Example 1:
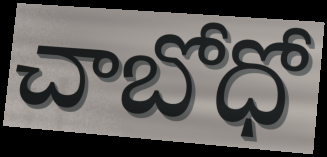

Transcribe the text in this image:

చాబోధో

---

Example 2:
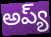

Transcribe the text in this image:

అప్య్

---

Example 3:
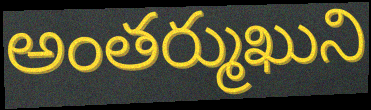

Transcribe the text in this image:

అంతర్ముఖుని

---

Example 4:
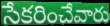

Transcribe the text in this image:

సేకరించేవారు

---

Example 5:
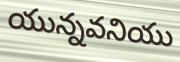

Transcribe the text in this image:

యున్నవనియు